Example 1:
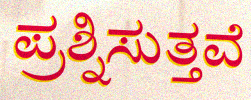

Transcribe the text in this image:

ಪ್ರಶ್ನಿಸುತ್ತವೆ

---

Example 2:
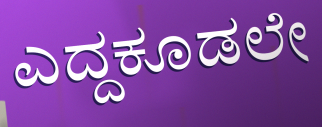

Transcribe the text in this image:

ಎದ್ದಕೂಡಲೇ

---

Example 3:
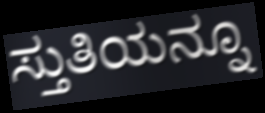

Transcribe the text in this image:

ಸ್ತುತಿಯನ್ನೂ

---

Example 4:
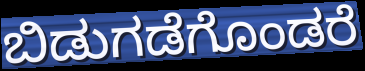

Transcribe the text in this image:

ಬಿಡುಗಡೆಗೊಂಡರೆ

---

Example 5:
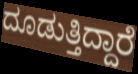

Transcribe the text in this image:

ದೂಡುತ್ತಿದ್ದಾರೆ